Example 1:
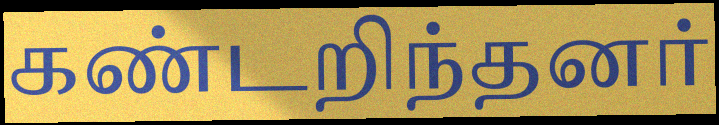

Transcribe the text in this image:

கண்டறிந்தனர்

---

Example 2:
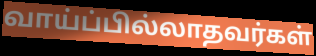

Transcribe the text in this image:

வாய்ப்பில்லாதவர்கள்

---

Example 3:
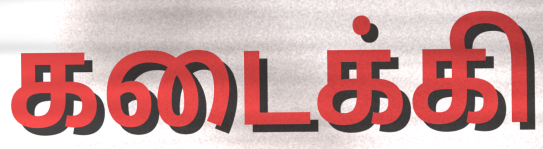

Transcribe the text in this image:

கடைக்கி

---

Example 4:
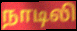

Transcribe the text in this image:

நாடிலி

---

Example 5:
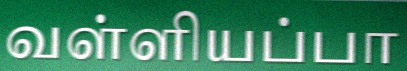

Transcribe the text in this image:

வள்ளியப்பா